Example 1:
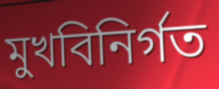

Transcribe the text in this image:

মুখবিনির্গত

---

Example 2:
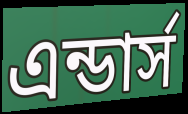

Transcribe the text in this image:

এন্ডার্স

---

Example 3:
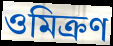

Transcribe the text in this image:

ওমিক্রণ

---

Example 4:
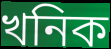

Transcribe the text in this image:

খনিক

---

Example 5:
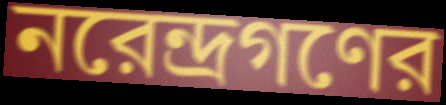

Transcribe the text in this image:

নরেন্দ্রগণের